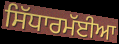
ਸਿੱਧਾਰਮੱਈਆ